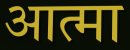
आत्‍मा